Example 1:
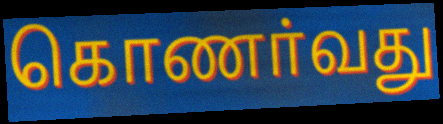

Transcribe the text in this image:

கொணர்வது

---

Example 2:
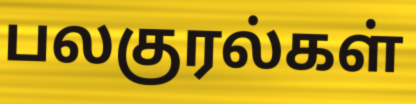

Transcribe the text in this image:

பலகுரல்கள்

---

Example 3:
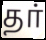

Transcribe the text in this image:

தர்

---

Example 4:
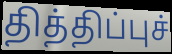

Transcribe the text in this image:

தித்திப்புச்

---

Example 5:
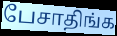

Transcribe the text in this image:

பேசாதிங்க